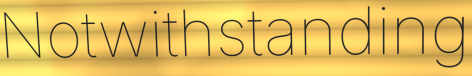
Notwithstanding